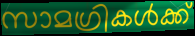
സാമഗ്രികൾക്ക്